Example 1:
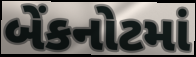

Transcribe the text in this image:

બેંકનોટમાં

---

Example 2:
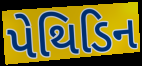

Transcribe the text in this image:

પેથિડિન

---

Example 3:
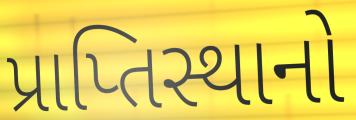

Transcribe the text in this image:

પ્રાપ્તિસ્થાનો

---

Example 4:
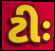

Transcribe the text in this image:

ટીઃ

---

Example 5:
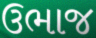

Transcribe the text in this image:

ઉભાજ